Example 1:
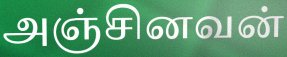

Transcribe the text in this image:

அஞ்சினவன்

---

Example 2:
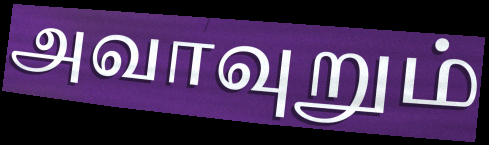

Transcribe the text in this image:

அவாவுறும்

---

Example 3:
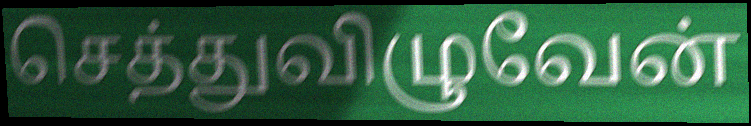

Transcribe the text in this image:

செத்துவிழுவேன்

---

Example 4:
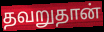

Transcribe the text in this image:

தவறுதான்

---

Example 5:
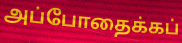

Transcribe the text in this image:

அப்போதைக்கப்